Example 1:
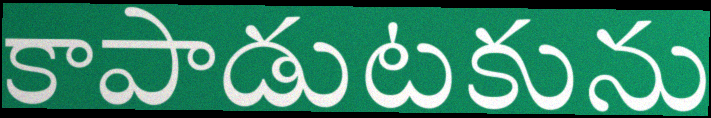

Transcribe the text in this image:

కాపాడుటకును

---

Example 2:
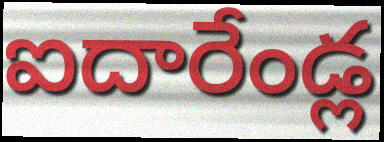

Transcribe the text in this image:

ఐదారేండ్ల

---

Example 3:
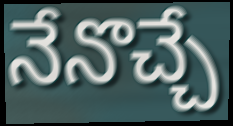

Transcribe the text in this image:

నేనొచ్చే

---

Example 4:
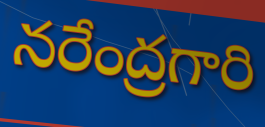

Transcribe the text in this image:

నరేంద్రగారి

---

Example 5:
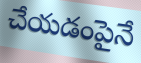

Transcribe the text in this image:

చేయడంపైనే